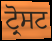
ਟ੍ਰੋਸਟ